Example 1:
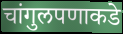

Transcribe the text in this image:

चांगुलपणाकडे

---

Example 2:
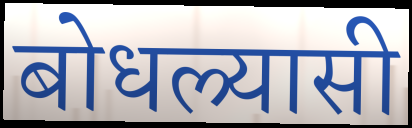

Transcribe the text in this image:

बोधल्यासी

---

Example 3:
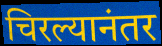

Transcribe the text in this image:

चिरल्यानंतर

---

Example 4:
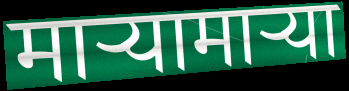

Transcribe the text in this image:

माऱ्यामाऱ्या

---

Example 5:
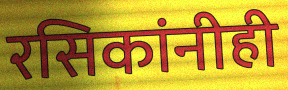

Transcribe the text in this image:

रसिकांनीही